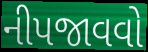
નીપજાવવો